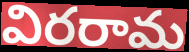
విరరామ